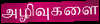
அழிவுகளை